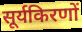
सूर्यकिरणों